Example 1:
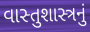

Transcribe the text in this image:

વાસ્તુશાસ્ત્રનું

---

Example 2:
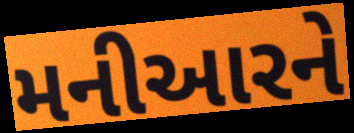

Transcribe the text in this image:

મનીઆરને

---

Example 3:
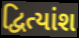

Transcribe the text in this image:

દ્વિત્યાંશ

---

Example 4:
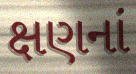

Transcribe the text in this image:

ક્ષણનાં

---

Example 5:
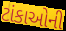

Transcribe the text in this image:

ટાંકાઓની